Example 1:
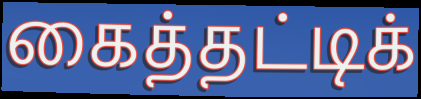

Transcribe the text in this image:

கைத்தட்டிக்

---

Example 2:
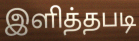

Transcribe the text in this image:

இளித்தபடி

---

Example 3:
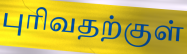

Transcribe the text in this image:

புரிவதற்குள்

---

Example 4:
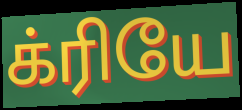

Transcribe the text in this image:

க்ரியே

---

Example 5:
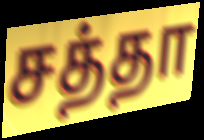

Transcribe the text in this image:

சத்தா